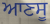
ਆਣਸੂ